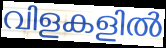
വിളകളിൽ